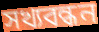
সখ্যবন্ধন